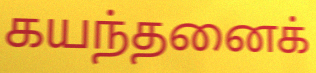
கயந்தனைக்